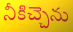
నీకిచ్చెను